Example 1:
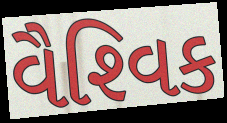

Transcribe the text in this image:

વૈશ્‍વિક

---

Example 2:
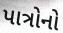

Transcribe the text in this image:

પાત્રોનો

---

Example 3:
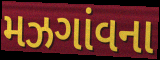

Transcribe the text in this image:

મઝગાંવના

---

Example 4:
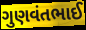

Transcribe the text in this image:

ગુણવંતભાઈ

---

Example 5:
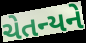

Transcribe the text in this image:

ચેતન્યને